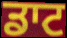
ਡਾਟ